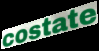
costate